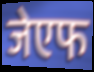
जेएफ